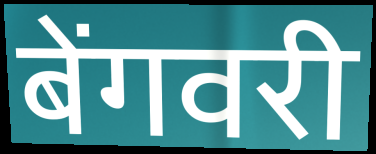
बेंगवरी